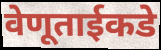
वेणूताईकडे